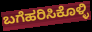
ಬಗೆಹರಿಸಿಕೊಳ್ಳಿ